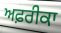
ਅਫ਼ਰੀਕਾ